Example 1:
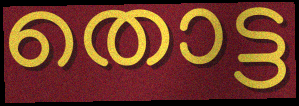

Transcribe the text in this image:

തൊട്ട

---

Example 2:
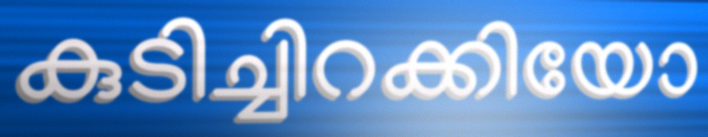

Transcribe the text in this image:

കുടിച്ചിറക്കിയോ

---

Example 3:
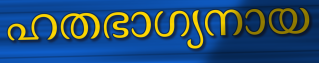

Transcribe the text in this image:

ഹതഭാഗ്യനായ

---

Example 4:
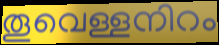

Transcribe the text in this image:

തൂവെള്ളനിറം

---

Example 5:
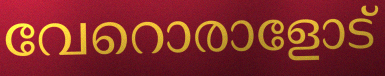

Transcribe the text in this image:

വേറൊരാളോട്